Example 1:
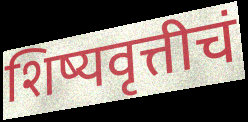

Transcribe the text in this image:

शिष्यवृत्तीचं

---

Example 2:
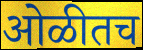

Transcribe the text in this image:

ओळीतच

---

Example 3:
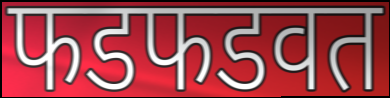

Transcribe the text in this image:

फडफडवत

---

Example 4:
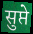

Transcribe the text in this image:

सुप्ते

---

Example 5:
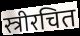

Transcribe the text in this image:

स्त्रीरचित